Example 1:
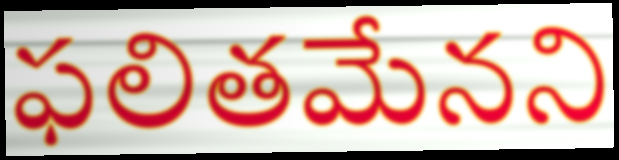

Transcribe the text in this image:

ఫలితమేనని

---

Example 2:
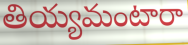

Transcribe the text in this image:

తియ్యమంటారా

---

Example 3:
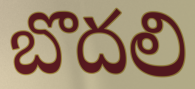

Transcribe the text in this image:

బొదలి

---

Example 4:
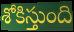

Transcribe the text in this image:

శోకిస్తుంది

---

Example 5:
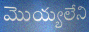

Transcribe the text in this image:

మొయ్యలేని